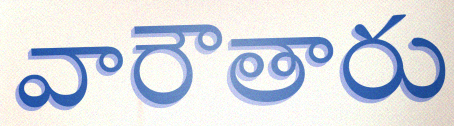
వారౌతారు